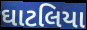
ઘાટલિયા